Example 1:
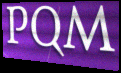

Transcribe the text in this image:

PQM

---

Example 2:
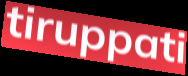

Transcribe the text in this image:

tiruppati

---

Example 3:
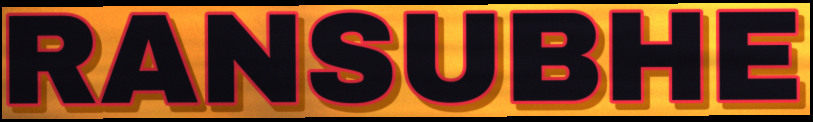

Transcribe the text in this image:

RANSUBHE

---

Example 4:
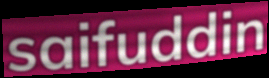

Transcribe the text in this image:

saifuddin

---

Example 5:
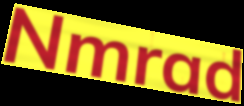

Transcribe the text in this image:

Nmrad